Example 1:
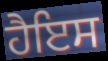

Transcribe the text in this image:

ਹੈਇਸ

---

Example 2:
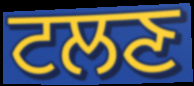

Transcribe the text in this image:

ਟਲਣ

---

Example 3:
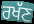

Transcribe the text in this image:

ਰਖੱਣ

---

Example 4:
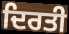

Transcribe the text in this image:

ਦਿਰਤੀ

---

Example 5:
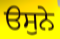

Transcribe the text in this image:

ੳਸੁਨੇ